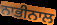
ਨਾਭੀਨਾਲ